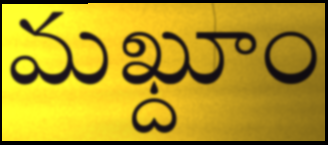
మఖ్దూం